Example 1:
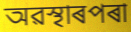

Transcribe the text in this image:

অৱস্থাৰপৰা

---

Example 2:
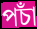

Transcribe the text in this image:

পচাঁ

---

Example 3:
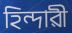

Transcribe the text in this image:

হিন্দাৱী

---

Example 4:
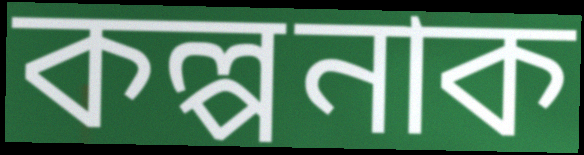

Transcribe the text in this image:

কল্পনাক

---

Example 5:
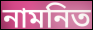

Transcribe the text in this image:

নামনিত